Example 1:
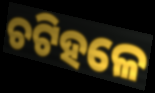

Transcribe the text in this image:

ଚଟିହଳେ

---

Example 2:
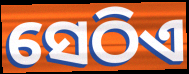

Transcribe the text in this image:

ସେଠିଏ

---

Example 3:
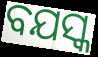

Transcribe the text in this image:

ବଯସ୍କ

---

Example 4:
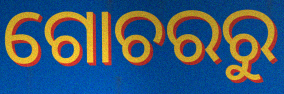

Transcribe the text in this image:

ଗୋଚରରୁ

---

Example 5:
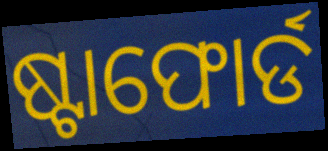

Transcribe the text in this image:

ଷ୍ଟାଫୋର୍ଡ